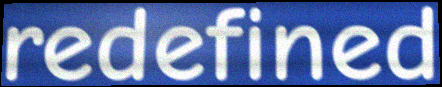
redefined